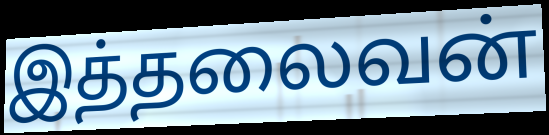
இத்தலைவன்